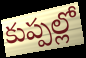
కుప్పల్లో